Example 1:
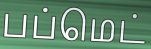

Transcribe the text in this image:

பப்மெட்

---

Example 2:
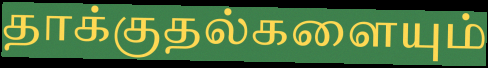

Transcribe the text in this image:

தாக்குதல்களையும்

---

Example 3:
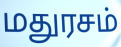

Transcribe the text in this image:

மதுரசம்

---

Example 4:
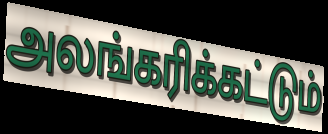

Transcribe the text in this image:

அலங்கரிக்கட்டும்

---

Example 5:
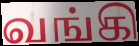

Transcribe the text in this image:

வங்கி